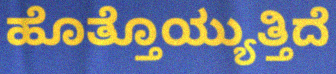
ಹೊತ್ತೊಯ್ಯುತ್ತಿದೆ